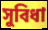
সুবিধা